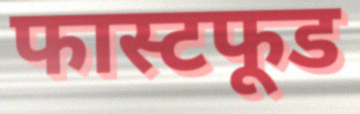
फास्टफूड